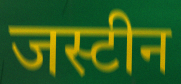
जस्टीन